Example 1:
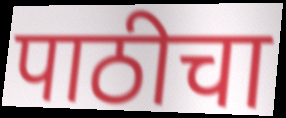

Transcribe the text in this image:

पाठीचा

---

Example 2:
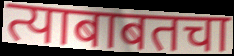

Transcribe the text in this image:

त्याबाबतचा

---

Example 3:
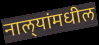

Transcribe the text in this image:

नाल्यांमधील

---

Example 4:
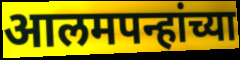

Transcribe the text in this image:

आलमपन्हांच्या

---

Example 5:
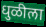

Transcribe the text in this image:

धुळीला